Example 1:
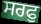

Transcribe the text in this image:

ਸਰਫੁ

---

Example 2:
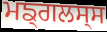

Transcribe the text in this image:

ਮਙ੍ਗਲਸ੍ਸ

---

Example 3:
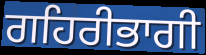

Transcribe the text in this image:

ਗਹਿਰੀਭਾਗੀ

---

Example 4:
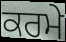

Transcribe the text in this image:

ਕਰਮੇ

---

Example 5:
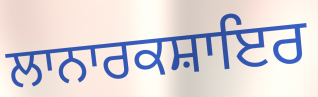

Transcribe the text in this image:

ਲਾਨਾਰਕਸ਼ਾਇਰ